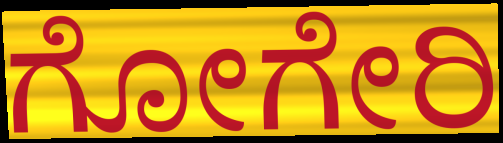
ಗೋಗೇರಿ